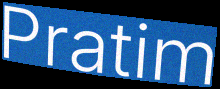
Pratim